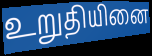
உறுதியினை